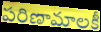
పరిణామాలకీ